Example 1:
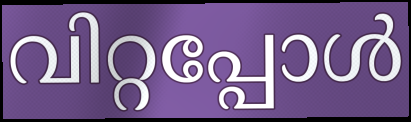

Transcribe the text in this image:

വിറ്റപ്പോൾ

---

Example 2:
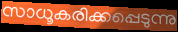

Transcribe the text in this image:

സാധൂകരിക്കപ്പെടുന്നു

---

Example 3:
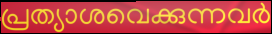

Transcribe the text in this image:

പ്രത്യാശവെക്കുന്നവർ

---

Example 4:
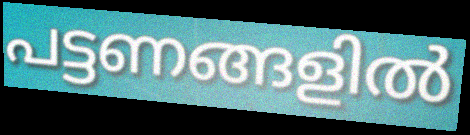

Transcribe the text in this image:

പട്ടണങ്ങളിൽ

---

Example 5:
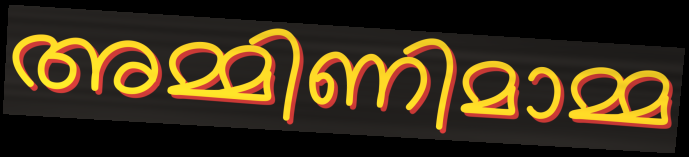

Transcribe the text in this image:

അമ്മിണിമാമ്മ